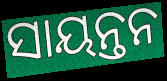
ସାୟନ୍ତନ